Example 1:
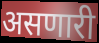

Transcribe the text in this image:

असणारी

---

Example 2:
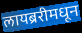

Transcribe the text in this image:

लायब्ररीमधून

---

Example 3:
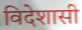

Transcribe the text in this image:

विदेशासी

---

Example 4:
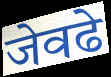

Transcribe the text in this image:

जेवढे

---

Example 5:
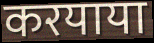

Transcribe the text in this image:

करयाया